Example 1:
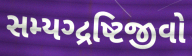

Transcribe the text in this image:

સમ્યગ્દ્રષ્ટિજીવો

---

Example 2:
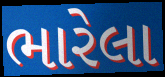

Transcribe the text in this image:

ભારેલા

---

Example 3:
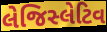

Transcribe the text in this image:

લેજિસ્લેટિવ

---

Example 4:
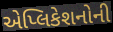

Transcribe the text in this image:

એપ્લિકેશનોની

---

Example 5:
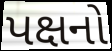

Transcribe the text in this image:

પક્ષનો